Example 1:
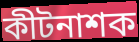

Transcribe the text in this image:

কীটনাশক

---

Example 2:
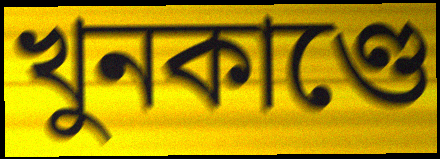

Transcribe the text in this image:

খুনকাণ্ডে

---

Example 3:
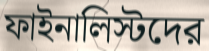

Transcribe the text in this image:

ফাইনালিস্টদের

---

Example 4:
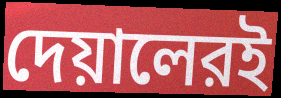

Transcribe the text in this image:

দেয়ালেরই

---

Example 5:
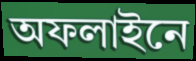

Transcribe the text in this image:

অফলাইনে